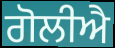
ਗੋਲੀਐ